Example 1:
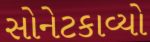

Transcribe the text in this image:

સોનેટકાવ્યો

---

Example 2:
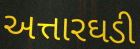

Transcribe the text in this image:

અત્તારઘડી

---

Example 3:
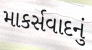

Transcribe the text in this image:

માકર્સવાદનું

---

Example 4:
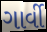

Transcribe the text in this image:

ગાર્વી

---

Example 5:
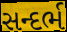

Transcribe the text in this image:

સન્દર્ભ